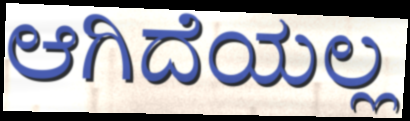
ಆಗಿದೆಯಲ್ಲ